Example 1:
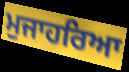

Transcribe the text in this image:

ਮੁਜਾਹਰਿਆ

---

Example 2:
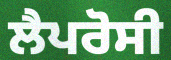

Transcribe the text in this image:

ਲੈਪਰੋਸੀ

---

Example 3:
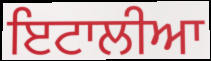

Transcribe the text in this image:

ਇਟਾਲੀਆ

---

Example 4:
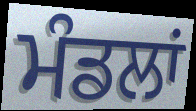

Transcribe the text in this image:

ਮੰਡਲਾਂ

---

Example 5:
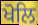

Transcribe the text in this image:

ਖੋਲਿ